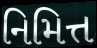
નિમિત્ત